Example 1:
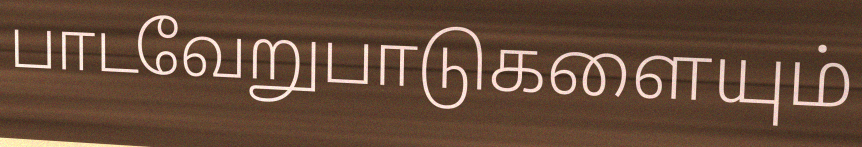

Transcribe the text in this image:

பாடவேறுபாடுகளையும்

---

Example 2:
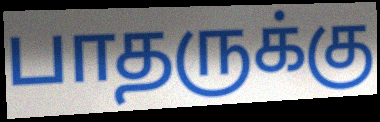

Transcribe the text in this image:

பாதருக்கு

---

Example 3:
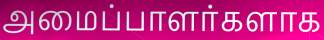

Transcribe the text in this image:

அமைப்பாளர்களாக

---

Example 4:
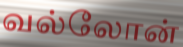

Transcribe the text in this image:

வல்லோன்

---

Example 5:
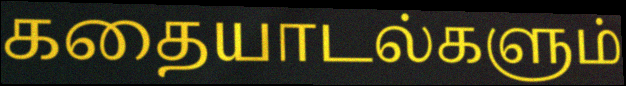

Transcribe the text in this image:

கதையாடல்களும்